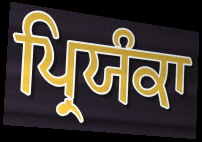
ਪ੍ਰਿਯੰਕਾ